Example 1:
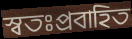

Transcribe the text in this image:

স্বতঃপ্রবাহিত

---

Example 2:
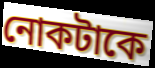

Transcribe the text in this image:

নোকটাকে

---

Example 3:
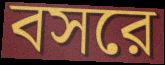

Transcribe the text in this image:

বসরে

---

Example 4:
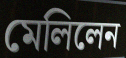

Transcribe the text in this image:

মেলিলেন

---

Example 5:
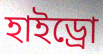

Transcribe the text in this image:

হাইড্রো